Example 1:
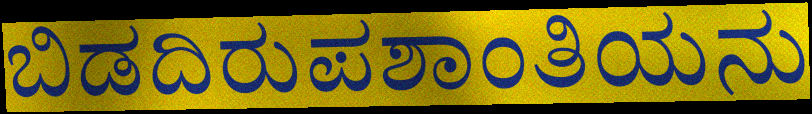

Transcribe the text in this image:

ಬಿಡದಿರುಪಶಾಂತಿಯನು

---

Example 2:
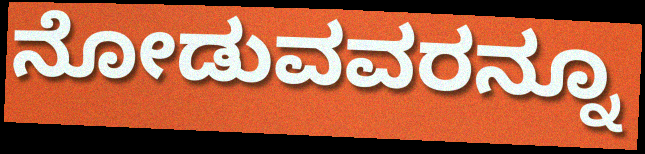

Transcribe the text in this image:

ನೋಡುವವರನ್ನೂ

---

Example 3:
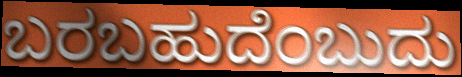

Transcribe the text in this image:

ಬರಬಹುದೆಂಬುದು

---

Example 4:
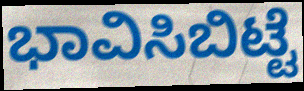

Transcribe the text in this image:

ಭಾವಿಸಿಬಿಟ್ಟೆ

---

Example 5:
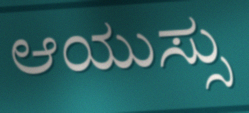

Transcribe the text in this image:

ಆಯುಸ್ಸು